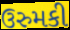
ઉરુમકી